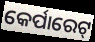
କେର୍ପାରେଟ୍